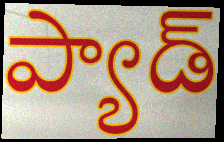
ప్యాడ్